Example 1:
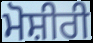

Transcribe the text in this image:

ਮੋਸ਼ੀਰੀ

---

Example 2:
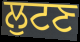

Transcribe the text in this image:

ਲੁਟਣ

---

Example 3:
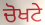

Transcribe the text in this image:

ਚੋਖਟੇ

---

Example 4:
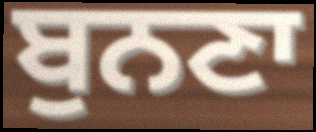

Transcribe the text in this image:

ਬੁਨਣਾ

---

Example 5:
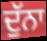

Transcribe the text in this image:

ਦੁੱਨਾ